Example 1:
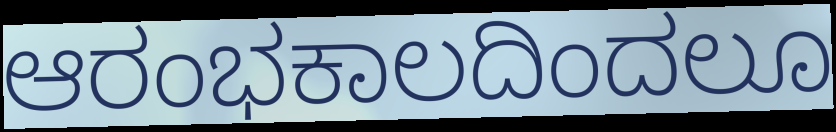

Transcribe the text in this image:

ಆರಂಭಕಾಲದಿಂದಲೂ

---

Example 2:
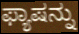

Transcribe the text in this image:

ಫ್ಯಾಷನ್ನು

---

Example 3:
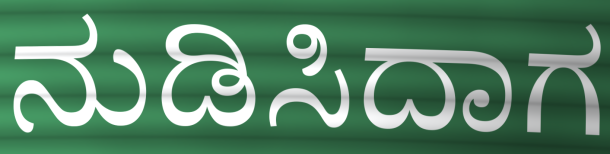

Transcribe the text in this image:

ನುಡಿಸಿದಾಗ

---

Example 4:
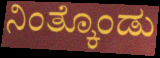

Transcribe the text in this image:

ನಿಂತ್ಕೊಂಡು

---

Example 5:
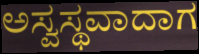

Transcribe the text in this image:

ಅಸ್ವಸ್ಥವಾದಾಗ